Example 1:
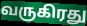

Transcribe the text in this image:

வருகிரது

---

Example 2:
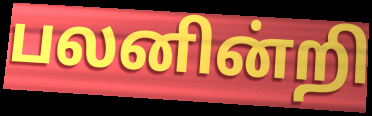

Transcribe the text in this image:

பலனின்றி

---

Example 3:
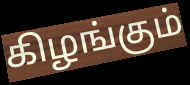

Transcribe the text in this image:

கிழங்கும்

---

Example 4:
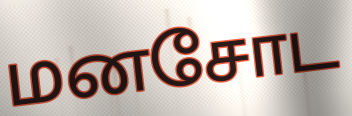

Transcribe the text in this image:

மனசோட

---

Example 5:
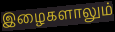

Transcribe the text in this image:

இழைகளாலும்